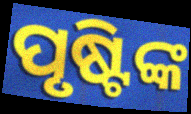
ପୃଷ୍ଟିଙ୍କ